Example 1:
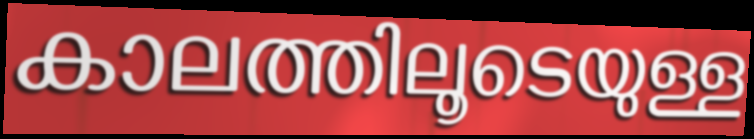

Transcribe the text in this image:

കാലത്തിലൂടെയുള്ള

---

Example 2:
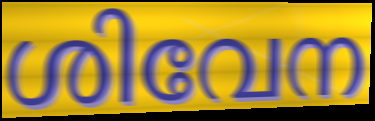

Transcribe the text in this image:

ശിവേന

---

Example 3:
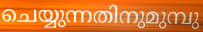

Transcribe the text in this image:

ചെയ്യുന്നതിനുമുമ്പു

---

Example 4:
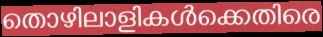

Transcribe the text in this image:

തൊഴിലാളികൾക്കെതിരെ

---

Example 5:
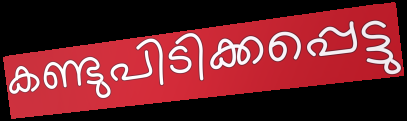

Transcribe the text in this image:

കണ്ടുപിടിക്കപ്പെട്ടു